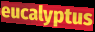
eucalyptus